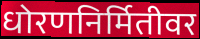
धोरणनिर्मितीवर